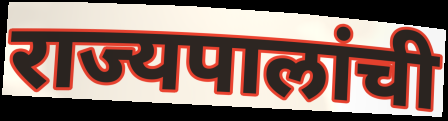
राज्यपालांची